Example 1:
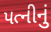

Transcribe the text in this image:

પત્નીનું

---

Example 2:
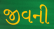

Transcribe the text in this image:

જીવની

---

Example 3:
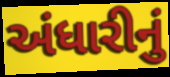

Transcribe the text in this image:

અંધારીનું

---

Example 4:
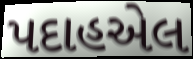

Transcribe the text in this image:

પદાહએલ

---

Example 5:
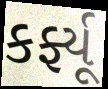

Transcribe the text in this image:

કર્ફ્યૂ